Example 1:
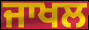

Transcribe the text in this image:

ਜਾਖਲ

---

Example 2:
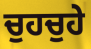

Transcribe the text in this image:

ਚੁਹਚੁਹੇ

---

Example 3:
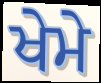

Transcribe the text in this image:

ਖੇਮੇ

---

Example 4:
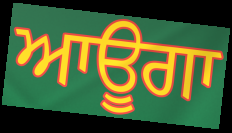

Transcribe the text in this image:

ਆਊਗਾ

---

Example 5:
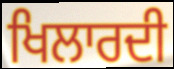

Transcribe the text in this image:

ਖਿਲਾਰਦੀ